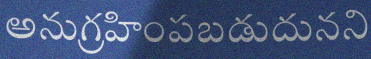
అనుగ్రహింపబడుదునని